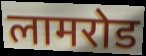
लामरोड